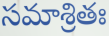
సమాశ్రితః